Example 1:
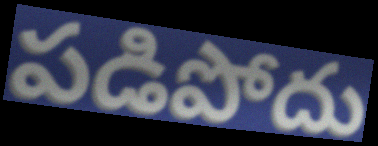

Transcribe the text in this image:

పడిపోదు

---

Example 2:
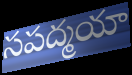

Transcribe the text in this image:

సపద్మయా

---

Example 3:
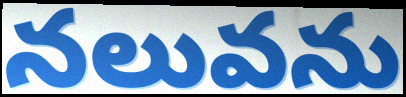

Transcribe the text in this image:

నలువను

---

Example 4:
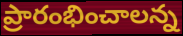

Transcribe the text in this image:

ప్రారంభించాలన్న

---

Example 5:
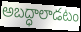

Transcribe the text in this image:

అబద్ధాలాడటం